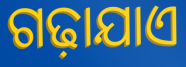
ଗଢ଼ାଯାଏ